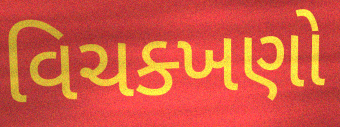
વિચક્ખણો